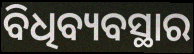
ବିଧିବ୍ୟବସ୍ଥାର